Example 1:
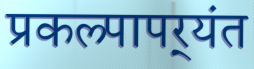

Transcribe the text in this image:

प्रकल्पापर्यंत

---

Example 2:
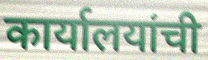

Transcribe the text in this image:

कार्यालयांची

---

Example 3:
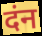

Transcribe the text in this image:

दंन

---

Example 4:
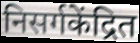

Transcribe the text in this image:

निसर्गकेंद्रित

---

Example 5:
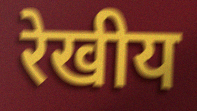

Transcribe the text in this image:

रेखीय